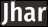
Jhar